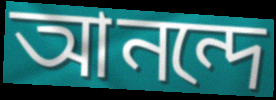
আনন্দে